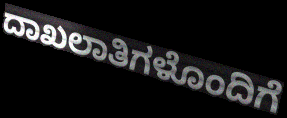
ದಾಖಲಾತಿಗಳೊಂದಿಗೆ